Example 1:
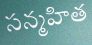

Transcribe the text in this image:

సన్మహిత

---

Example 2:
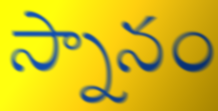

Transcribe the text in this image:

స్నానం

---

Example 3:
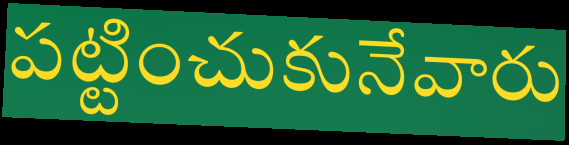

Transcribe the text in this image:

పట్టించుకునేవారు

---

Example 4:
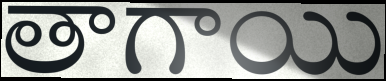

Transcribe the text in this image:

తాగాయి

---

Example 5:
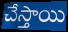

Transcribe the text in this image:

చేస్తాయి